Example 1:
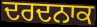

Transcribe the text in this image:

ਦਰਦਨਾਕ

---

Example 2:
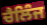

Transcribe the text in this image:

ਚੈਲਿੰਜ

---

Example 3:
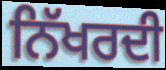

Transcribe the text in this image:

ਨਿੱਖਰਦੀ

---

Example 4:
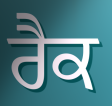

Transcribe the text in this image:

ਰੈਕ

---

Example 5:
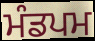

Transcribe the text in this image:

ਮੰਡਪਮ